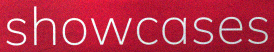
showcases